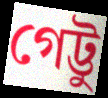
গেট্টু